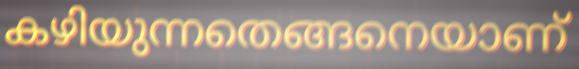
കഴിയുന്നതെങ്ങനെയാണ്